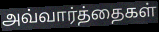
அவ்வார்த்தைகள்